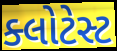
ક્લોટેસ્ટ